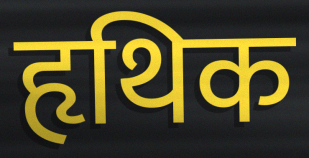
हृथिक